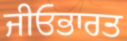
ਜੀਓਭਾਰਤ